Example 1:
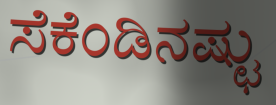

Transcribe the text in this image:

ಸೆಕೆಂಡಿನಷ್ಟು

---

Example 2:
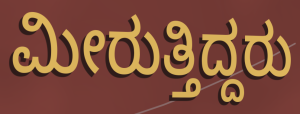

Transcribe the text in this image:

ಮೀರುತ್ತಿದ್ದರು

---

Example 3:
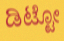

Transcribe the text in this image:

ಡಿಟ್ಟೋ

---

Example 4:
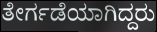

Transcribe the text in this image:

ತೇರ್ಗಡೆಯಾಗಿದ್ದರು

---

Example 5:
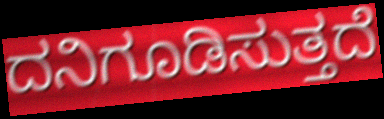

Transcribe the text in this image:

ದನಿಗೂಡಿಸುತ್ತದೆ